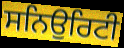
ਸਨਿਉਰਿਟੀ